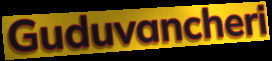
Guduvancheri